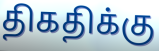
திகதிக்கு